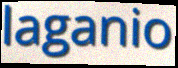
laganio